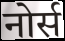
नोर्स